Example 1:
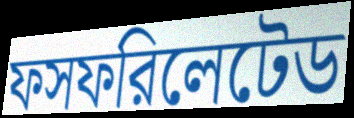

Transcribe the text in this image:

ফসফরিলেটেড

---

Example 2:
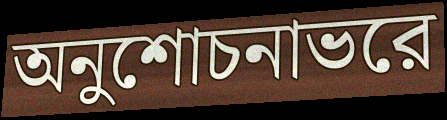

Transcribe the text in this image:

অনুশোচনাভরে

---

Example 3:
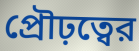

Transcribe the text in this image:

প্রৌঢ়ত্বের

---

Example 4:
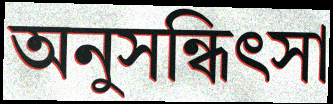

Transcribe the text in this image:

অনুসন্ধিৎসা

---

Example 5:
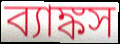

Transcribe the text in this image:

ব্যাঙ্কস